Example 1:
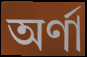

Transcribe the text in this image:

অর্ণা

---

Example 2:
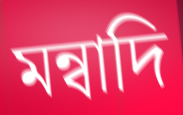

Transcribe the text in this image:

মন্বাদি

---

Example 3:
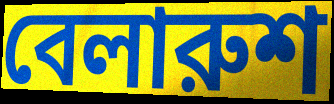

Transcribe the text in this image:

বেলারুশ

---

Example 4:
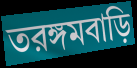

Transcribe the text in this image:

তরঙ্গমবাড়ি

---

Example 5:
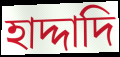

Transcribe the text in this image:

হাদ্দাদি